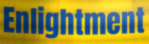
Enlightment